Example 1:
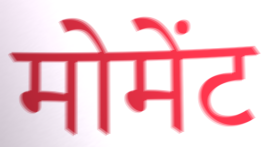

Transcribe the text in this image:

मोमेंट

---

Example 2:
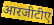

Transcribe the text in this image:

आरजीटीए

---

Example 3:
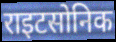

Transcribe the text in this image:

राइटसोनिक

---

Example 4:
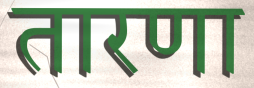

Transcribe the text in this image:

तारणा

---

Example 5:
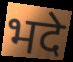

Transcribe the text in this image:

भदे